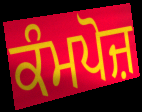
ਕੰਮਪੋਜ਼